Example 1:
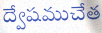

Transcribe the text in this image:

ద్వేషముచేత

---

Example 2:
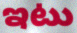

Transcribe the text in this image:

ఇటు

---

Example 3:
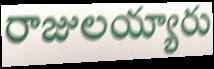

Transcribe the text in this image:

రాజులయ్యారు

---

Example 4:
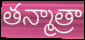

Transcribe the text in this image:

తన్మాత్రా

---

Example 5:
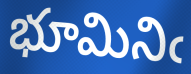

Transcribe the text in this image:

భూమినిఁ